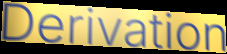
Derivation